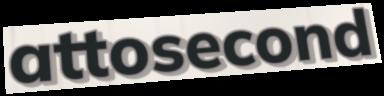
attosecond